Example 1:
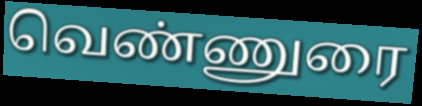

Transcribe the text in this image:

வெண்ணுரை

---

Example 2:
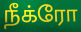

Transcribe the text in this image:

நீக்ரோ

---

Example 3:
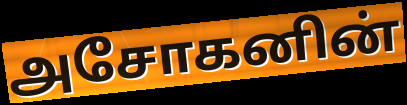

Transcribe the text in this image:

அசோகனின்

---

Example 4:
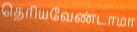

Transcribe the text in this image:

தெரியவேண்டாமா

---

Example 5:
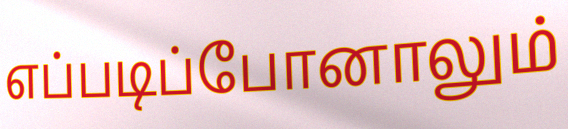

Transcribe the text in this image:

எப்படிப்போனாலும்